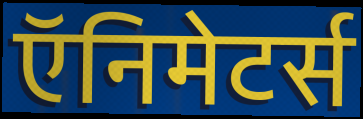
ऍनिमेटर्स